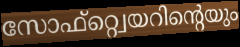
സോഫ്റ്റ്വെയറിന്റെയും